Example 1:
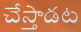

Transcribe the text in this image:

చేస్తాడట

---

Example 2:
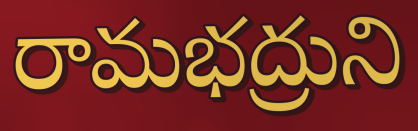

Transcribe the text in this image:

రామభద్రుని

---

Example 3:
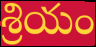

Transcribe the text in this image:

శ్రియం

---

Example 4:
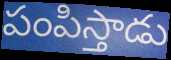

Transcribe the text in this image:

పంపిస్తాడు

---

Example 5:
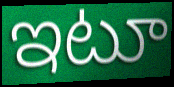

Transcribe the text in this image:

ఇటూ